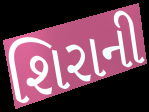
શિરાની